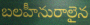
బలహీనురాలైన